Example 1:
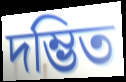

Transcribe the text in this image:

দম্ভিত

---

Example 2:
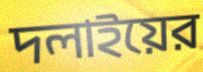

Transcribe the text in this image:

দলাইয়ের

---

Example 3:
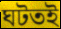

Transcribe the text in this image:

ঘটতই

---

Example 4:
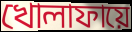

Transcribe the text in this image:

খোলাফায়ে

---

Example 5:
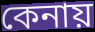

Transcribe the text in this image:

কেনায়